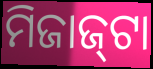
ମିଜାଜ୍‌ଟା